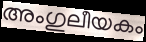
അംഗുലീയകം